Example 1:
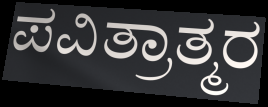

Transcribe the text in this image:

ಪವಿತ್ರಾತ್ಮರ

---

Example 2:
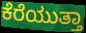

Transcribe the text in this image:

ಕೆರೆಯುತ್ತಾ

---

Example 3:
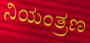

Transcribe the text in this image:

ನಿಯಂತ್ರಣ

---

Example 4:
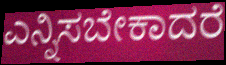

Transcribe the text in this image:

ಎನ್ನಿಸಬೇಕಾದರೆ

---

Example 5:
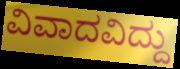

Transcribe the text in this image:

ವಿವಾದವಿದ್ದು